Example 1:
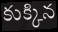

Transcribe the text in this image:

కుక్కిన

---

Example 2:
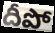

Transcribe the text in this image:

దీపో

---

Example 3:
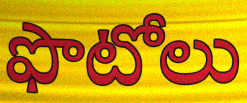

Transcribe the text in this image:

ఫొటోలు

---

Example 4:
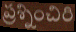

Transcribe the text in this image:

ప్రశ్నించిరి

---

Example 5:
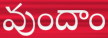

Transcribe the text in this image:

వుందాం